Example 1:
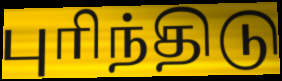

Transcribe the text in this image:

புரிந்திடு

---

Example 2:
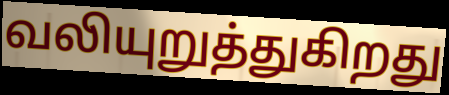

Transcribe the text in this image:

வலியுறுத்துகிறது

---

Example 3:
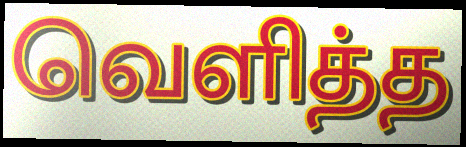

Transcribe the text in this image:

வெளித்த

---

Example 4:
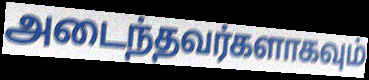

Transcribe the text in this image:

அடைந்தவர்களாகவும்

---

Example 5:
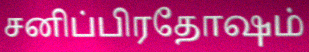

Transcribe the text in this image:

சனிப்பிரதோஷம்